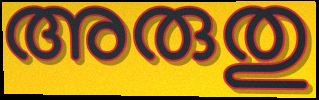
അരുതു